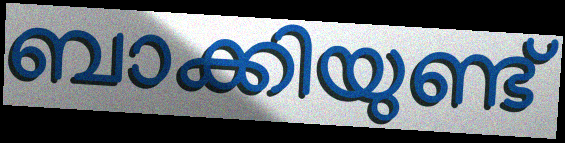
ബാക്കിയുണ്ട്